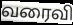
வரைவி